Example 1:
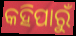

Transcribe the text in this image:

କହିପାରୁଁ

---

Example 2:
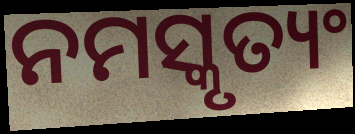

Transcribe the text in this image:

ନମସ୍କୃତ୍ୟଂ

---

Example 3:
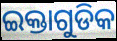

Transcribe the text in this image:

ଇକ୍ତାଗୁଡିକ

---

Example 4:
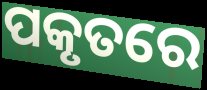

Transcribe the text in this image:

ପକୃତରେ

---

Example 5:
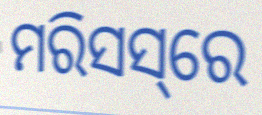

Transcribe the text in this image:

ମରିସସ୍‌ରେ